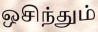
ஒசிந்தும்